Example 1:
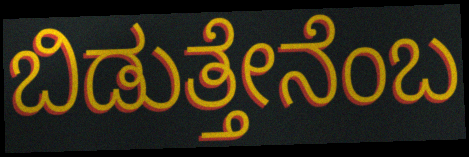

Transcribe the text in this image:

ಬಿಡುತ್ತೇನೆಂಬ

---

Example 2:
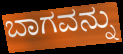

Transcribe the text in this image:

ಬಾಗವನ್ನು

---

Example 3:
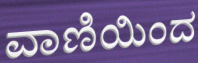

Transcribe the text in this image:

ವಾಣಿಯಿಂದ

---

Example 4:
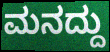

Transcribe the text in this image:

ಮನದ್ದು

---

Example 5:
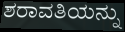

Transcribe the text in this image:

ಶರಾವತಿಯನ್ನು